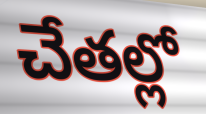
చేతల్లో